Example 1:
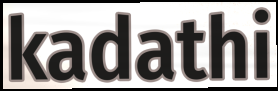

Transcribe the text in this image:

kadathi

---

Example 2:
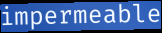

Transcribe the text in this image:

impermeable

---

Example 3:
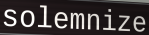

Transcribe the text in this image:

solemnize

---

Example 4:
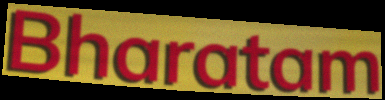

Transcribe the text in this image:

Bharatam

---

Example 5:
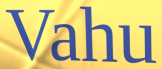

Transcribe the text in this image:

Vahu